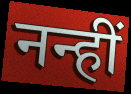
नन्हीं